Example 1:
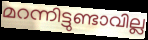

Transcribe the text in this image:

മറന്നിട്ടുണ്ടാവില്ല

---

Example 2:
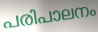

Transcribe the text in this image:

പരിപാലനം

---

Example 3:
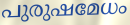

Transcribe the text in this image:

പുരുഷമേധം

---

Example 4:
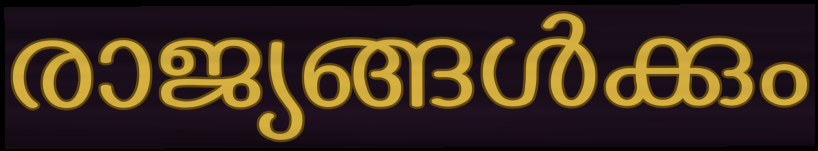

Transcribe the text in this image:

രാജ്യങ്ങൾക്കും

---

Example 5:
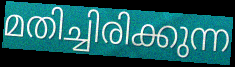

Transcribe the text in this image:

മതിച്ചിരിക്കുന്ന